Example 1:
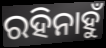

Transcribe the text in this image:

ରହିନାହୁଁ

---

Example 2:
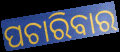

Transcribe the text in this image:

ପଚାରିବାର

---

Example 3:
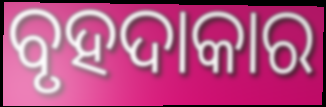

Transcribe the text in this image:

ବୃହଦାକାର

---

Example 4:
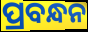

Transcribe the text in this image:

ପ୍ରବନ୍ଧନ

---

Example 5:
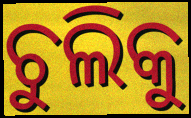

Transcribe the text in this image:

ଚୁଲିକୁ